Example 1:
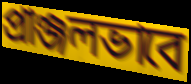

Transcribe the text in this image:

প্রাঞ্জলভাবে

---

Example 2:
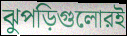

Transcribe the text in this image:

ঝুপড়িগুলোরই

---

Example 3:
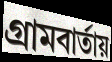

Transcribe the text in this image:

গ্রামবার্তায়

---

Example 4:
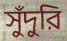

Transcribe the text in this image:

সুঁদুরি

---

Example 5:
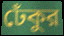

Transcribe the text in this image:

ঢেঁকুর